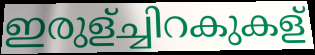
ഇരുള്ച്ചിറകുകള്